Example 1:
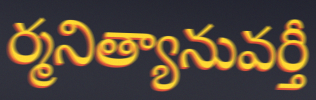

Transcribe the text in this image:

ర్మనిత్యానువర్తీ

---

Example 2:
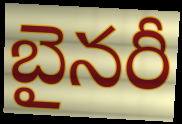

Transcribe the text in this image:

బైనరీ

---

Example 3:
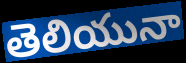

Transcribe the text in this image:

తెలియునా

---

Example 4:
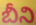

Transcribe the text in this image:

బీని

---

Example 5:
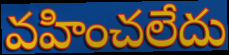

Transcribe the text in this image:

వహించలేదు